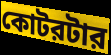
কোটরটার